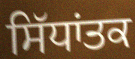
ਸਿੱਧਾਂਤਕ